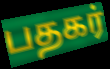
பதகர்